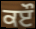
ਕੲੌ